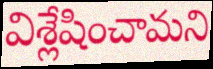
విశ్లేషించామని